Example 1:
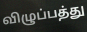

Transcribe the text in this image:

விழுப்பத்து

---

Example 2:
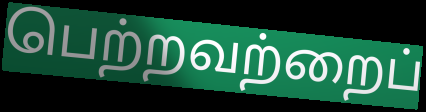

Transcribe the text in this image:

பெற்றவற்றைப்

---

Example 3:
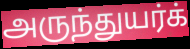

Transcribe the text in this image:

அருந்துயர்க்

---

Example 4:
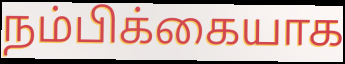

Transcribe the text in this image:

நம்பிக்கையாக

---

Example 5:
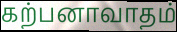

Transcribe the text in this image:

கற்பனாவாதம்